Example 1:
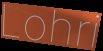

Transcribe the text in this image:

Lohri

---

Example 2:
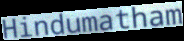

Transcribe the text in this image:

Hindumatham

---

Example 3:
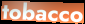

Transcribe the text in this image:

tobacco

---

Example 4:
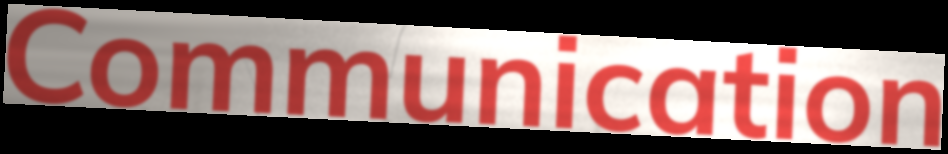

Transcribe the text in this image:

Communication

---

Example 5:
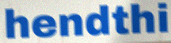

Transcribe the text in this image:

hendthi